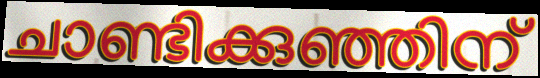
ചാണ്ടിക്കുഞ്ഞിന്